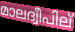
മാലദ്വീപില്